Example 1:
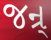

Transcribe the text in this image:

જન્ર્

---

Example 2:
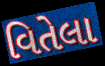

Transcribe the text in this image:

વિતેલા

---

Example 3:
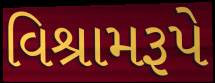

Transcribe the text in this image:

વિશ્રામરૂપે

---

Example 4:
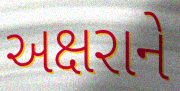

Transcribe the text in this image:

અક્ષરાને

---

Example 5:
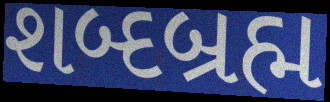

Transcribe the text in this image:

શબ્દબ્રહ્મ